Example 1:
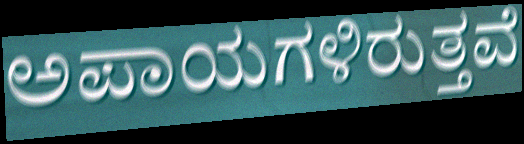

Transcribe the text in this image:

ಅಪಾಯಗಳಿರುತ್ತವೆ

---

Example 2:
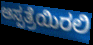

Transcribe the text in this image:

ಆಸ್ಪತ್ರೆಯಿರಲಿ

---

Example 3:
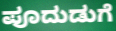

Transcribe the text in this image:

ಪೂದುಡುಗೆ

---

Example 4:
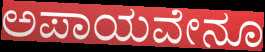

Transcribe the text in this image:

ಅಪಾಯವೇನೂ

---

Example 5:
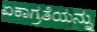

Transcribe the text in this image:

ಏಕಾಗ್ರತೆಯನ್ನು